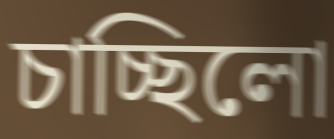
চাচ্ছিলো